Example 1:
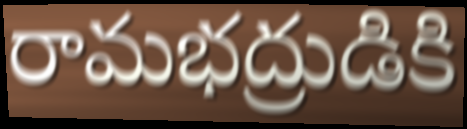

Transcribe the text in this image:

రామభద్రుడికి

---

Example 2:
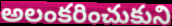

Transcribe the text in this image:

అలంకరించుకుని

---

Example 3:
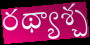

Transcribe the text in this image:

రథ్యాశ్చ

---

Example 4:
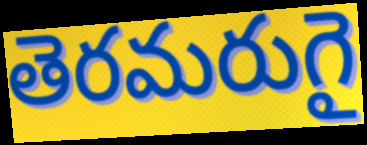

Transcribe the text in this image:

తెరమరుగై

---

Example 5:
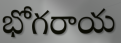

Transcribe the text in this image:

భోగరాయ